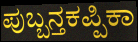
ಪುಬ್ಬನ್ತಕಪ್ಪಿಕಾ